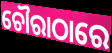
ଚୌରାଠାରେ